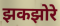
झकझोरे